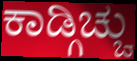
ಕಾಡ್ಗಿಚ್ಚು